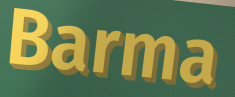
Barma